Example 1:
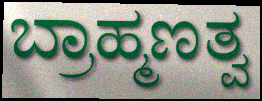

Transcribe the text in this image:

ಬ್ರಾಹ್ಮಣತ್ವ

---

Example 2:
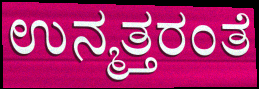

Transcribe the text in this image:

ಉನ್ಮತ್ತರಂತೆ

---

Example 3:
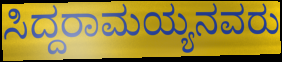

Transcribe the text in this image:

ಸಿದ್ದರಾಮಯ್ಯನವರು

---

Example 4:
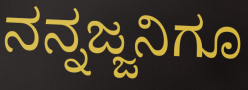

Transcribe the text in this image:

ನನ್ನಜ್ಜನಿಗೂ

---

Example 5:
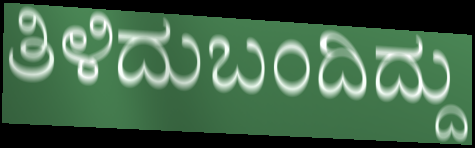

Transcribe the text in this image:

ತಿಳಿದುಬಂದಿದ್ದು